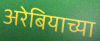
अरेबियाच्या